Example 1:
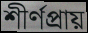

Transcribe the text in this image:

শীর্ণপ্রায়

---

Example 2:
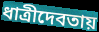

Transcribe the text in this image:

ধাত্রীদেবতায়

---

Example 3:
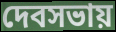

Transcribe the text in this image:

দেবসভায়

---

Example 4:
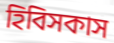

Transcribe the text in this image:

হিবিসকাস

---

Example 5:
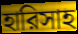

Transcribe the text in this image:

হারিসাহ